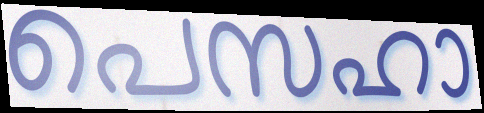
പെസഹാ